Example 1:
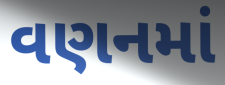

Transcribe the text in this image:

વણનમાં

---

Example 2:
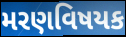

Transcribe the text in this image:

મરણવિષયક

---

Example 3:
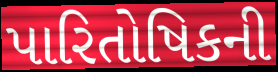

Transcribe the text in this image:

પારિતોષિકની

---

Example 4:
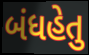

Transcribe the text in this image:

બંધહેતુ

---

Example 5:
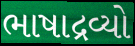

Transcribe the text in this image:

ભાષાદ્રવ્યો